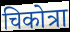
चिकोत्रा